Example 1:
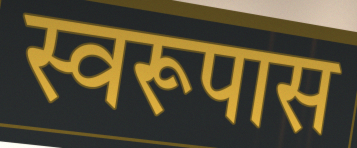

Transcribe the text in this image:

स्वरूपास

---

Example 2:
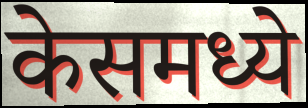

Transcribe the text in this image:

केसमध्ये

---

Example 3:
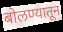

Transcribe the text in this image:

बोलण्यातून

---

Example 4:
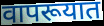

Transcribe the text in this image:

वापरूयात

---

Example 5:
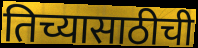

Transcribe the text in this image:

तिच्यासाठीची